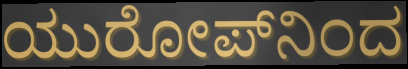
ಯುರೋಪ್‌ನಿಂದ